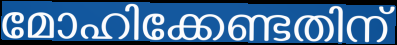
മോഹിക്കേണ്ടതിന്